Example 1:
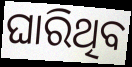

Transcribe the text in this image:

ଘାରିଥିବ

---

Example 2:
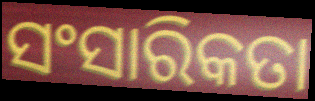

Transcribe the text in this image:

ସଂସାରିକତା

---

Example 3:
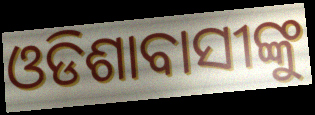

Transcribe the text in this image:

ଓଡିଶାବାସୀଙ୍କୁ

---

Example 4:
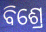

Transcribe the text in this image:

ବିଶ୍ରେ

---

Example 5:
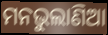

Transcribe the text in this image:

ମନଭୁଲାଣିଆ